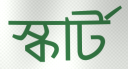
স্কাৰ্ট